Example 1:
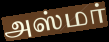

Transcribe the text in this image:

அஸ்மர்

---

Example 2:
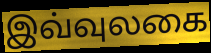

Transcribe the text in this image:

இவ்வுலகை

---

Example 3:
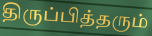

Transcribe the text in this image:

திருப்பித்தரும்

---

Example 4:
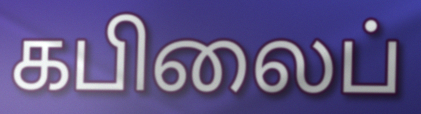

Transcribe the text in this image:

கபிலைப்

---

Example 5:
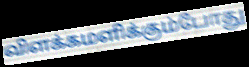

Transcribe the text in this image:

விளக்கமளிக்கும்போது